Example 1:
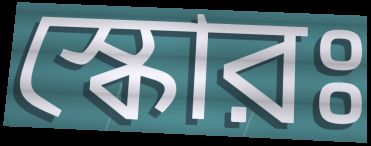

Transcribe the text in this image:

স্কোরঃ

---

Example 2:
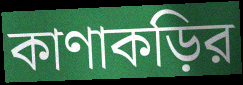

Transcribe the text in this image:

কাণাকড়ির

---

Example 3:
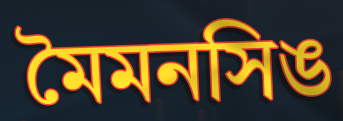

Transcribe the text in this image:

মৈমনসিঙ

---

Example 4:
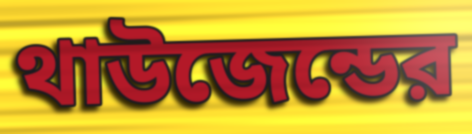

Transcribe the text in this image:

থাউজেন্ডের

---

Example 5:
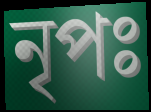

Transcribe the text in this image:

নৃপঃ